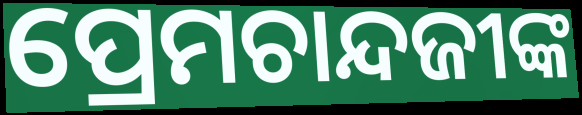
ପ୍ରେମଚାନ୍ଦଜୀଙ୍କ